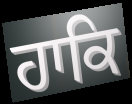
ਹਾਕਿ